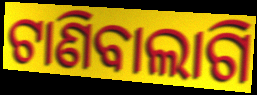
ଟାଣିବାଲାଗି